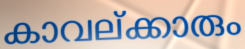
കാവല്ക്കാരും